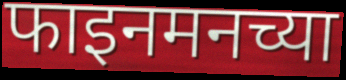
फाइनमनच्या